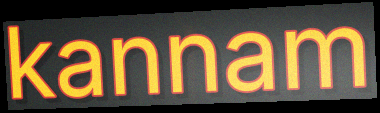
kannam